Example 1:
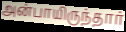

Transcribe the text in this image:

அன்பாயிருந்தார்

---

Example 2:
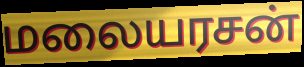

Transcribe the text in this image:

மலையரசன்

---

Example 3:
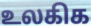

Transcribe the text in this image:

உலகிக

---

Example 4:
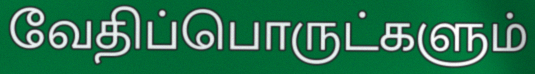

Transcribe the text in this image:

வேதிப்பொருட்களும்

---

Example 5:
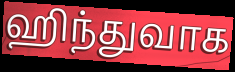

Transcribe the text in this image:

ஹிந்துவாக